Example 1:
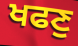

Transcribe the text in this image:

ਖਫਣੁ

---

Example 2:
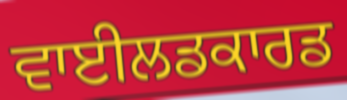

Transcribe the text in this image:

ਵਾਈਲਡਕਾਰਡ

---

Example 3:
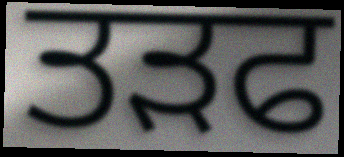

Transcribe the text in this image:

ਤੜਫ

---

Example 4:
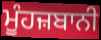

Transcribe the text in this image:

ਮੂੰਹਜ਼ਬਾਨੀ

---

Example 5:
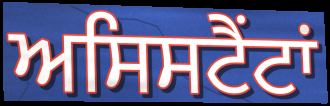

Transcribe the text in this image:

ਅਸਿਸਟੈਂਟਾਂ